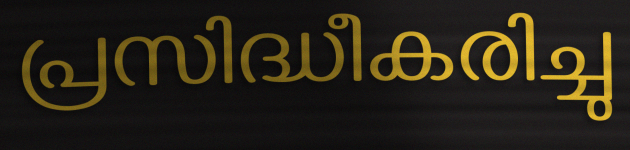
പ്രസിദ്ധീകരിച്ചു